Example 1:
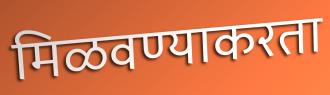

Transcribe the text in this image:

मिळवण्याकरता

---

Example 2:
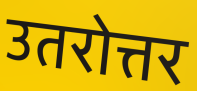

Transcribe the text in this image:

उतरोत्तर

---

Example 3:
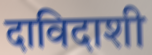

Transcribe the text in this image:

दाविदाशी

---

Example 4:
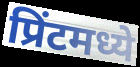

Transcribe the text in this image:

प्रिंटमध्ये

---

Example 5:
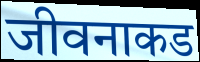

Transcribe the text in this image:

जीवनाकड